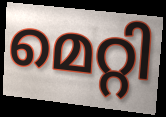
മെറ്റി